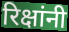
रिक्षांनी